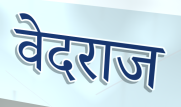
वेदराज